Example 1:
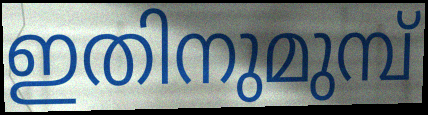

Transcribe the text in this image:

ഇതിനുമുമ്പ്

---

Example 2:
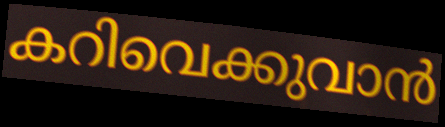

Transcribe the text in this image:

കറിവെക്കുവാൻ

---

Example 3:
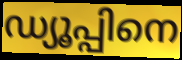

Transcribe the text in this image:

ഡ്യൂപ്പിനെ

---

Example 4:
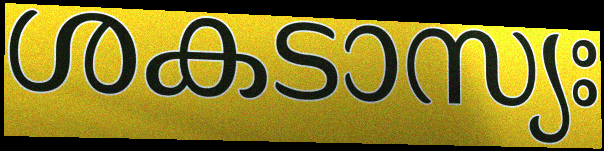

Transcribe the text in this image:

ശകടാസ്യഃ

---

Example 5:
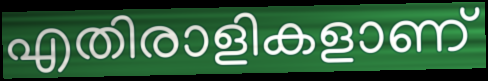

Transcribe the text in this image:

എതിരാളികളാണ്